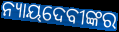
ନ୍ୟାୟଦେବୀଙ୍କର